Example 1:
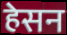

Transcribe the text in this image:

हेसन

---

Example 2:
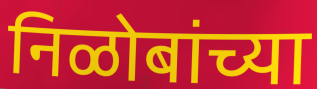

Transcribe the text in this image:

निळोबांच्या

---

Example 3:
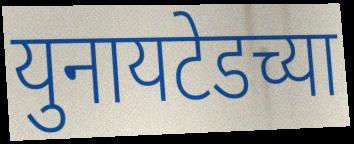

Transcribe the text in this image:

युनायटेडच्या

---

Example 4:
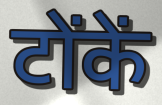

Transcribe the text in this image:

टोंकें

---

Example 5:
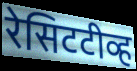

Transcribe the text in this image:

रेसिटटीव्ह